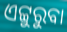
ଏଟ୍ଟୁରୁବା